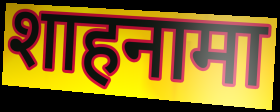
शाहनामा